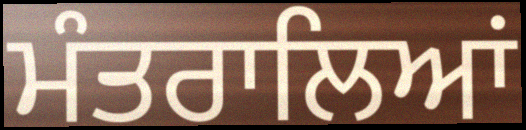
ਮੰਤਰਾਲਿਆਂ